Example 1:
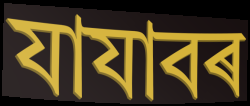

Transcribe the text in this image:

যাযাবৰ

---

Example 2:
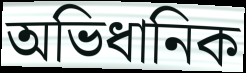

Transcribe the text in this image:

অভিধানিক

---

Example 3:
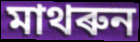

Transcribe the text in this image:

মাথৰুন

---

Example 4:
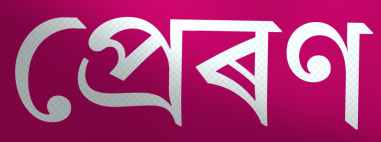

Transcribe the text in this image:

প্ৰেৰণ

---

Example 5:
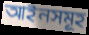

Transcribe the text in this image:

আইনসমূহ